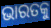
ଭାରତକୁ